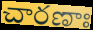
చారణాః